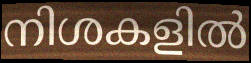
നിശകളിൽ